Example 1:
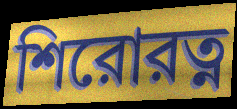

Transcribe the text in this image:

শিরোরত্ন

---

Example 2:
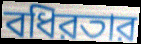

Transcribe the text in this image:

বধিরতার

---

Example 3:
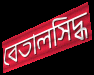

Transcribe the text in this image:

বেতালসিদ্ধ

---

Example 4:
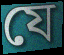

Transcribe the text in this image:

যে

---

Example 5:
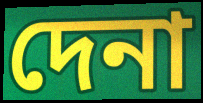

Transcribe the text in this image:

দেনা